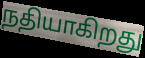
நதியாகிறது